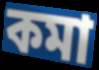
কমা